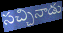
సచ్చినాడు